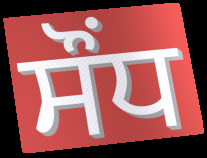
ਸੌਂਧ